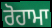
ਰੋਹਾਮਾ